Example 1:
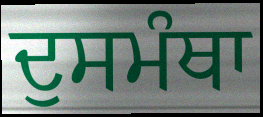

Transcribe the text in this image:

ਦੁਸਮੰਥਾ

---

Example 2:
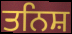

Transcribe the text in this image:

ਤਨਿਸ਼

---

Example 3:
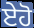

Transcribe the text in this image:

ਏਹੋ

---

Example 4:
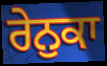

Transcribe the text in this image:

ਰੇਨੁਕਾ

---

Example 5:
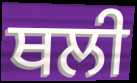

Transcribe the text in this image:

ਥਲੀ